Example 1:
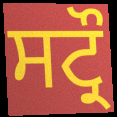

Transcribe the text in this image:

ਸਟ੍ਰੌ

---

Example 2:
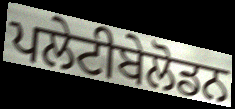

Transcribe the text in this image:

ਪਲੇਟੀਬੇਲੋਡਨ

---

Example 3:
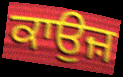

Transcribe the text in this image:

ਕਾਉਜ਼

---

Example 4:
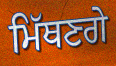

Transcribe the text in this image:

ਮਿੱਥਣਗੇ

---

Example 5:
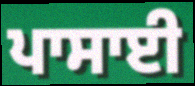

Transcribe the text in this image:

ਪਾਸਾਈ